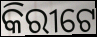
କିରୀଟେ